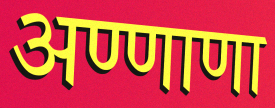
अण्णाणा